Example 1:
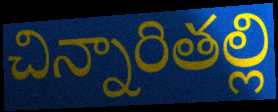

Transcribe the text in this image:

చిన్నారితల్లి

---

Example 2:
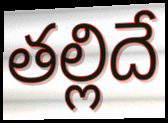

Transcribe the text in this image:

తల్లిదే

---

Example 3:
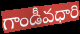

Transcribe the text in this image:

గాండీవధారి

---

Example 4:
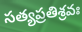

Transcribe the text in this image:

సత్యప్రతిశ్రవః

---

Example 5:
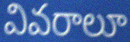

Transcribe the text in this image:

వివరాలూ